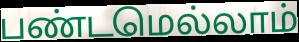
பண்டமெல்லாம்